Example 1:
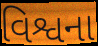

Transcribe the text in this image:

વિશ્વના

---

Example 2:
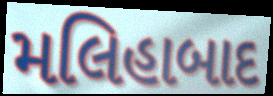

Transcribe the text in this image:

મલિહાબાદ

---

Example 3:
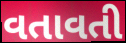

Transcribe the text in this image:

વતાવતી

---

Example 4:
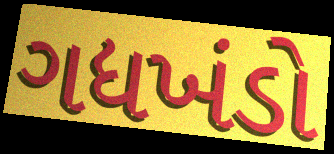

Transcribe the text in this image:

ગદ્યખંડો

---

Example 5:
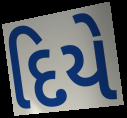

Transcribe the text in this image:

દિયે